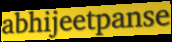
abhijeetpanse